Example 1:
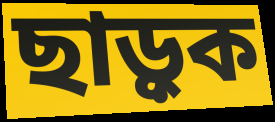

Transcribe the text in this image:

ছাড়ুক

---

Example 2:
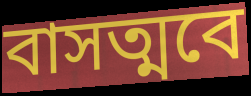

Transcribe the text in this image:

বাসত্মবে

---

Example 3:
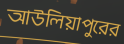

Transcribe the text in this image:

আউলিয়াপুরের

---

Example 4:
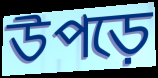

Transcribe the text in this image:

উপড়ে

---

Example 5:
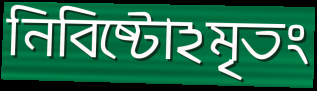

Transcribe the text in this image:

নিবিষ্টোঽমৃতং